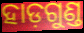
ହାଡ଼ଗୁଣ୍ଡ